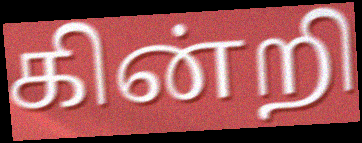
கின்றி